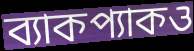
ব্যাকপ্যাকও